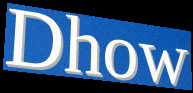
Dhow